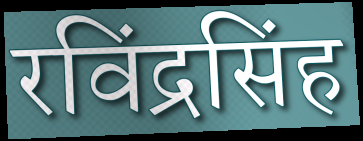
रविंद्रसिंह